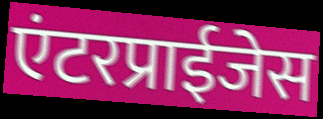
एंटरप्राईजेस